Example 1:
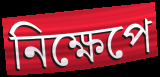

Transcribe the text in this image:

নিক্ষেপে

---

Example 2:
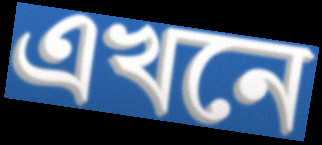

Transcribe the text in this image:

এখনে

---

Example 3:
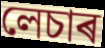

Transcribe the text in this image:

লেচাৰ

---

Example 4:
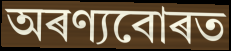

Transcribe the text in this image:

অৰণ্যবোৰত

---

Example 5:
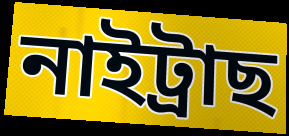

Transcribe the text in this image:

নাইট্ৰাছ